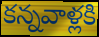
కన్నవాళ్లకి